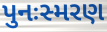
પુનઃસ્મરણ